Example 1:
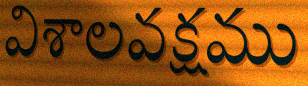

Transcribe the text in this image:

విశాలవక్షము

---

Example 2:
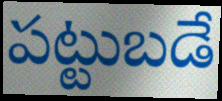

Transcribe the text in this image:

పట్టుబడే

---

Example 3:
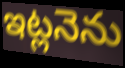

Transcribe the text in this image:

ఇట్లనెను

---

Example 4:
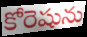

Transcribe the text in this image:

కోరెషును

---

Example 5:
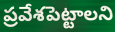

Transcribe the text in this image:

ప్రవేశపెట్టాలని